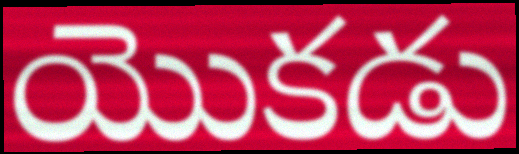
యొకడు